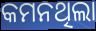
କମନଥିଲା